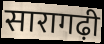
सारागढ़ी